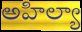
అహిల్యా